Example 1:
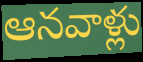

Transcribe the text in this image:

ఆనవాళ్లు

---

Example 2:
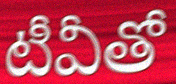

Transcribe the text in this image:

టీవీతో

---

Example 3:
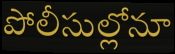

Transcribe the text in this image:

పోలీసుల్లోనూ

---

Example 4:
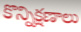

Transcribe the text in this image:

కొన్నిక్షణాలు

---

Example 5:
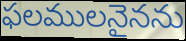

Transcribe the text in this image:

ఫలములనైనను